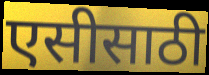
एसीसाठी